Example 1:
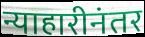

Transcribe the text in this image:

न्याहारीनंतर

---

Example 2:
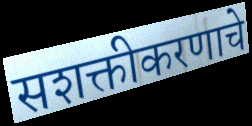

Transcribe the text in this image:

सशक्तीकरणाचे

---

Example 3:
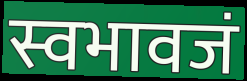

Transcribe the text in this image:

स्वभावजं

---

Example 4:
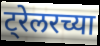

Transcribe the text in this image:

ट्रेलरच्या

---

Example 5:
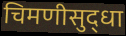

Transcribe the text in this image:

चिमणीसुद्धा